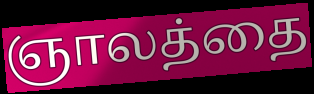
ஞாலத்தை